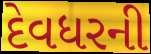
દેવધરની